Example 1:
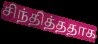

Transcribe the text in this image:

சிந்தித்ததாக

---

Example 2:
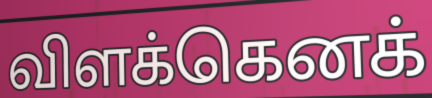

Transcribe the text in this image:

விளக்கெனக்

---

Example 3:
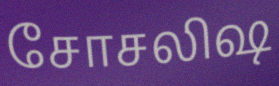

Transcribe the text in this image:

சோசலிஷ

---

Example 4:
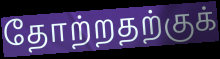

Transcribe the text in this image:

தோற்றதற்குக்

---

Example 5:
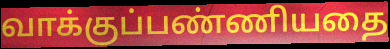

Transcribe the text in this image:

வாக்குப்பண்ணியதை